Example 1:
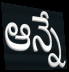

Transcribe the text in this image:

ఆన్నే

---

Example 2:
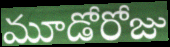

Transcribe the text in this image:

మూడోరోజు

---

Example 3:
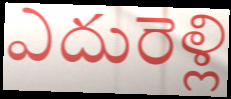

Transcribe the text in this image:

ఎదురెళ్లి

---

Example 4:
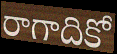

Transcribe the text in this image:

రాగాదికో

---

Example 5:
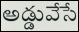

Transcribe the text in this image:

అడ్డువేసే